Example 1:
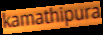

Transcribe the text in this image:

kamathipura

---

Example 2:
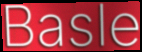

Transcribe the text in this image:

Basle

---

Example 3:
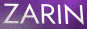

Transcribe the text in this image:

ZARIN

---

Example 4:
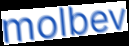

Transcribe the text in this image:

molbev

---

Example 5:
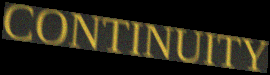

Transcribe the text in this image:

CONTINUITY